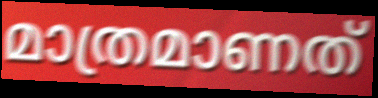
മാത്രമാണത്